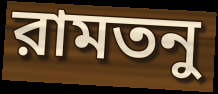
রামতনু